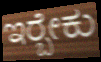
ಇರ‍್ಬೇಕು